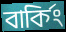
বার্কিং